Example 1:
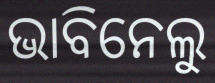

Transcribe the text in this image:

ଭାବିନେଲୁ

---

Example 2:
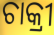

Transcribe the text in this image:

ଚାକ୍ରୀ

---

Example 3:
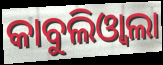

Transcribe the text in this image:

କାବୁଲିଓ୍ୱାଲା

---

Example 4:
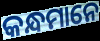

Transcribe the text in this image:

କନ୍ଧମାନେ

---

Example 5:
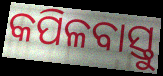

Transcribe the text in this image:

କପିଳବାସ୍ତୁ